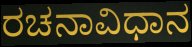
ರಚನಾವಿಧಾನ